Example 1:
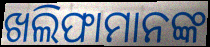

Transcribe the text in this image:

ଖଲିଫାମାନଙ୍କ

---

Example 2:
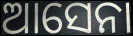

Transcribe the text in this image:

ଆସେନା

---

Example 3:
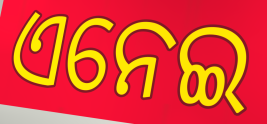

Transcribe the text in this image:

ଏନେଇ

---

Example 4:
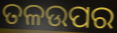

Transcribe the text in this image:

ତଳଉପର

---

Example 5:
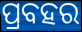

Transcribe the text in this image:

ପ୍ରବହର